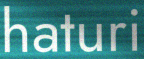
haturi